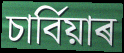
চাৰ্বিয়াৰ